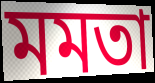
মমতা